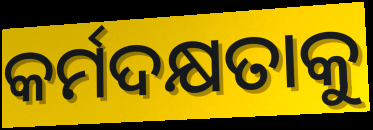
କର୍ମଦକ୍ଷତାକୁ